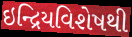
ઇન્દ્રિયવિશેષથી